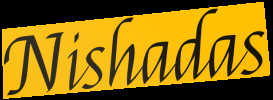
Nishadas